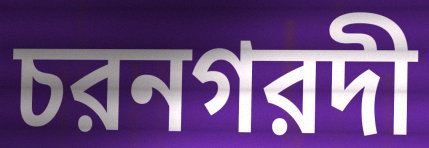
চরনগরদী